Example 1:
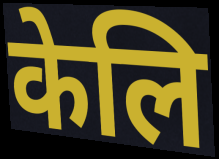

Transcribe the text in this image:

केलि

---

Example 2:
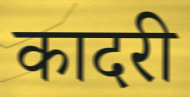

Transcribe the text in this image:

कादरी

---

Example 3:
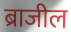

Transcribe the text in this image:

ब्राजील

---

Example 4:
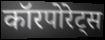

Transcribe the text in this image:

कॉरपोरेट्स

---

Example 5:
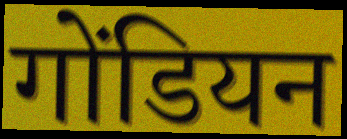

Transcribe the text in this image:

गोंडियन